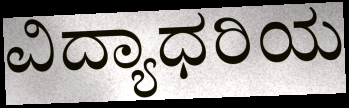
ವಿದ್ಯಾಧರಿಯ